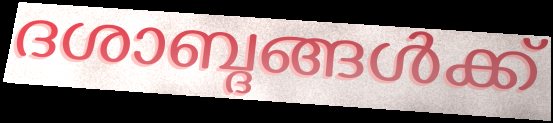
ദശാബ്ദങ്ങൾക്ക്